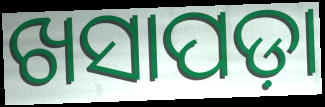
ଖସାପଡ଼ା